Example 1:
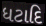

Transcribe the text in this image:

ધટાદિ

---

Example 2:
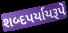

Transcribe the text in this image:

શબ્દપર્યાયરૂપે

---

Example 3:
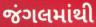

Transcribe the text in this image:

જંગલમાંથી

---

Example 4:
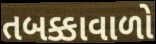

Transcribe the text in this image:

તબક્કાવાળો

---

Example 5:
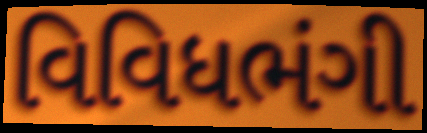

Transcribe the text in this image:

વિવિધભંગી